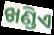
ଖଣ୍ଡିଏ